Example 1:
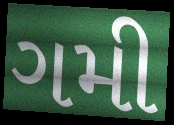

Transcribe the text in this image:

ગમી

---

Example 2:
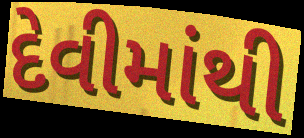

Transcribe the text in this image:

દેવીમાંથી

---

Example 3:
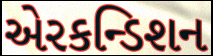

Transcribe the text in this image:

એરકન્ડિશન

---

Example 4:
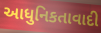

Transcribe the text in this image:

આધુનિકતાવાદી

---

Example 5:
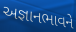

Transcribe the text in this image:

અજ્ઞાનભાવને